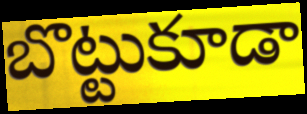
బొట్టుకూడా